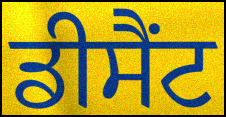
ਡੀਸੈਂਟ